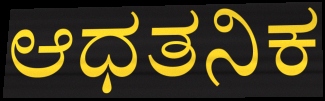
ಆಧತನಿಕ